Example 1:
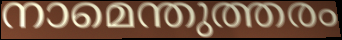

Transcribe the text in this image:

നാമെന്തുത്തരം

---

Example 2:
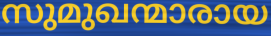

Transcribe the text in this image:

സുമുഖന്മാരായ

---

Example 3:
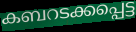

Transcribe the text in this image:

കബറടക്കപ്പെട്ട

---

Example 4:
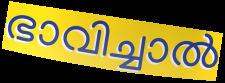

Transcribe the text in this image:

ഭാവിച്ചാൽ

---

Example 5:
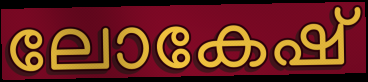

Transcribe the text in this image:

ലോകേഷ്